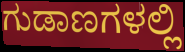
ಗುಡಾಣಗಳಲ್ಲಿ